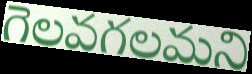
గెలవగలమని